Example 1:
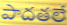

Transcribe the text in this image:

పాదతలే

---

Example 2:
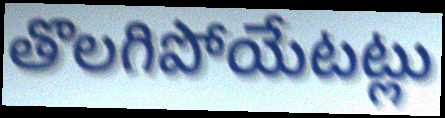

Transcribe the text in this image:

తొలగిపోయేటట్లు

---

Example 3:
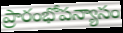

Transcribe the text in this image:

ప్రారంభోపన్యాసం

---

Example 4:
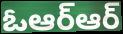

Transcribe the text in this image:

ఓఆర్ఆర్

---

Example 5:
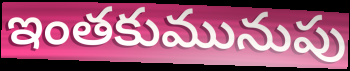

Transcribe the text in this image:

ఇంతకుమునుపు